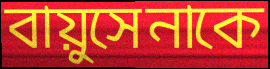
বায়ুসেনাকে